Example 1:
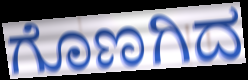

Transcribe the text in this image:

ಗೊಣಗಿದ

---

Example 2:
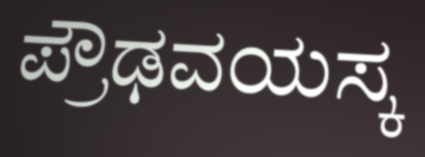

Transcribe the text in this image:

ಪ್ರೌಢವಯಸ್ಕ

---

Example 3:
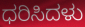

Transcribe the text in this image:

ಧರಿಸಿದಳು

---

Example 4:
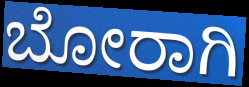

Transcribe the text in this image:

ಬೋರಾಗಿ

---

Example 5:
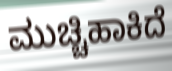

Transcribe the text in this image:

ಮುಚ್ಚಿಹಾಕಿದೆ